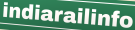
indiarailinfo